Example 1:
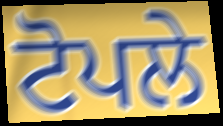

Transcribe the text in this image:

ਟੋਪਲੇ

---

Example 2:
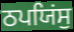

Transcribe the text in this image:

ਠਪਯਿਂਸੁ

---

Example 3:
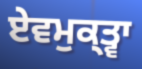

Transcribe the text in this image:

ਏਵਮੁਕ੍ਤ੍ਵਾ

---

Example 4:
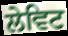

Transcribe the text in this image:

ਲੇਵਿਟ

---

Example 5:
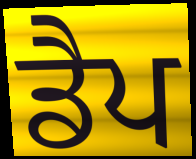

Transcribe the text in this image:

ਡੈਪ